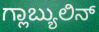
ಗ್ಲಾಬ್ಯುಲಿನ್